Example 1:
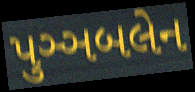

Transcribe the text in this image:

પુઞ્ઞબલેન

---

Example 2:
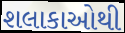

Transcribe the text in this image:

શલાકાઓથી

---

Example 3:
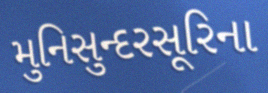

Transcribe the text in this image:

મુનિસુન્દરસૂરિના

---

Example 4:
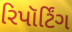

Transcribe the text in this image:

રિપૉર્ટિંગ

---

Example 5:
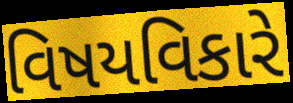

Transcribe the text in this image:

વિષયવિકારે